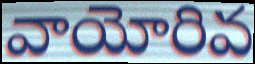
వాయోరివ